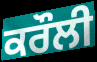
ਕਰੌਲੀ